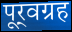
पूर्वग्रह